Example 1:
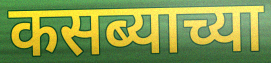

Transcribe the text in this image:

कसब्याच्या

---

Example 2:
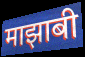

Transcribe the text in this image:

माझाबी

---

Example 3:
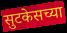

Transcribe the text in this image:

सुटकेसच्या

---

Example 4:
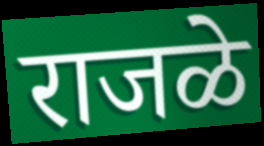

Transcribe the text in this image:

राजळे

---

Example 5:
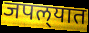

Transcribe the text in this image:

जपल्यात